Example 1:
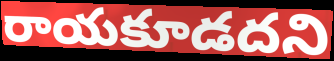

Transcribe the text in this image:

రాయకూడదని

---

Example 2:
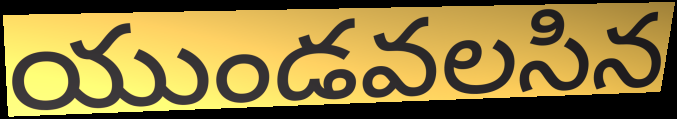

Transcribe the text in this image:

యుండవలసిన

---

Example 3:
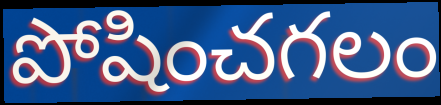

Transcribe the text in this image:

పోషించగలం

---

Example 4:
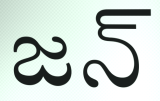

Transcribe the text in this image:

జన్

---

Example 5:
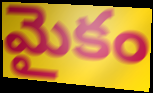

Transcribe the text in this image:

మైకం